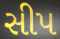
સીપ